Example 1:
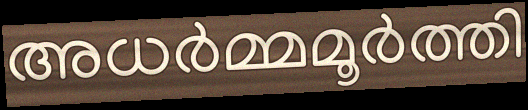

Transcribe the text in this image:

അധർമ്മമൂർത്തി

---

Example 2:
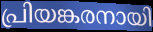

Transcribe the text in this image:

പ്രിയങ്കരനായി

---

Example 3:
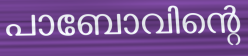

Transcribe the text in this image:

പാബോവിന്റെ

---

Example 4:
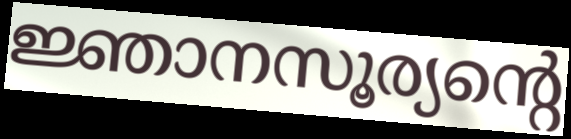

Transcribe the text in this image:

ജ്ഞാനസൂര്യന്റെ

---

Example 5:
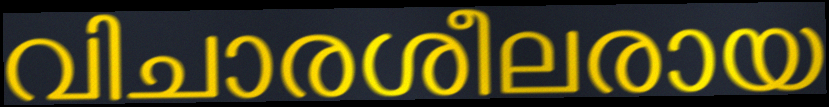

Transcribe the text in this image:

വിചാരശീലരായ